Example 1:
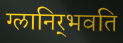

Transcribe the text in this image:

ग्लानिर्भवति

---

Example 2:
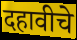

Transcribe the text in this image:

दहावीचे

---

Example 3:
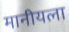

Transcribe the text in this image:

मानीयला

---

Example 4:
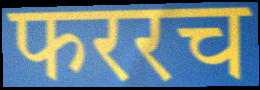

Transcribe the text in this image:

फररच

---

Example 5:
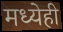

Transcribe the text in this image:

मध्येही